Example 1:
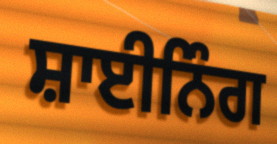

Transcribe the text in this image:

ਸ਼ਾਈਨਿੰਗ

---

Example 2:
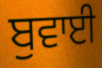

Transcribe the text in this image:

ਬੁਵਾਈ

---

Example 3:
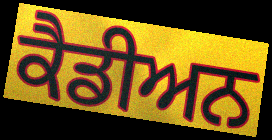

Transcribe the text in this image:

ਕੈਡੀਅਨ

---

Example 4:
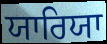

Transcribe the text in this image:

ਯਾਰਿਯਾ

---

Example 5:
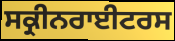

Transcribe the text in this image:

ਸਕ੍ਰੀਨਰਾਈਟਰਸ